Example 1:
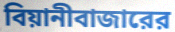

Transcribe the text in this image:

বিয়ানীবাজারের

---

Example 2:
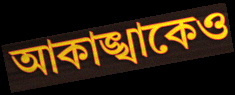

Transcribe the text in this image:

আকাঙ্খাকেও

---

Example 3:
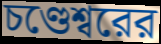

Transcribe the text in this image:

চণ্ডেশ্বরের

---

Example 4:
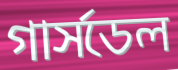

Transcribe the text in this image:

গার্সডেল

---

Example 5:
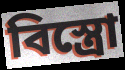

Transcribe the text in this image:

বিস্ত্রো